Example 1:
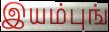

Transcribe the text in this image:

இயம்புங்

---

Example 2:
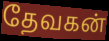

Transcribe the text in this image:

தேவகன்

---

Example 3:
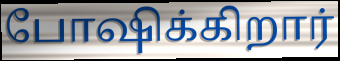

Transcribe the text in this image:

போஷிக்கிறார்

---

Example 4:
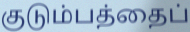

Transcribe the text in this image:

குடும்பத்தைப்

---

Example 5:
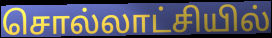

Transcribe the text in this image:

சொல்லாட்சியில்